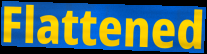
Flattened